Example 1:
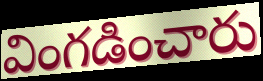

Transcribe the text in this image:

వింగడించారు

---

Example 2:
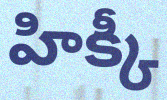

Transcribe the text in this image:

హిక్కీ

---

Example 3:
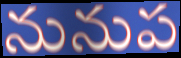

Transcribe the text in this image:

నునుప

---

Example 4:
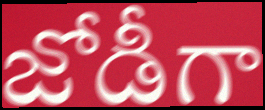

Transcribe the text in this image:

జోడీగా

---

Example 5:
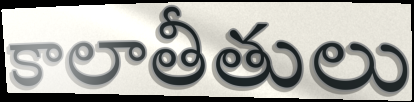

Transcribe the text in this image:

కాలాతీతులు